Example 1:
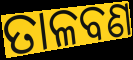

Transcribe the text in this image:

ତାଳବଣ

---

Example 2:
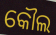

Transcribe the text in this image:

କୌଲ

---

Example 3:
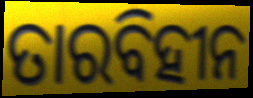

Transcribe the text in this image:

ତାରବିହୀନ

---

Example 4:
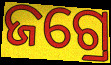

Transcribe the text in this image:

ଜଗ୍ରେ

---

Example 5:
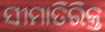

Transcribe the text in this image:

ସୀମାତିରିକ୍ତ